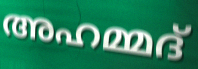
അഹമ്മദ്